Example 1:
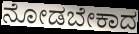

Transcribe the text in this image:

ನೋಡಬೇಕಾದ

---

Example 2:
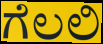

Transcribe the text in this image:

ಗೆಲಲಿ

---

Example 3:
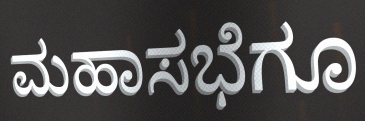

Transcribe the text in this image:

ಮಹಾಸಭೆಗೂ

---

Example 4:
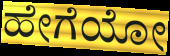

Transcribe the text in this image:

ಹೇಗೆಯೋ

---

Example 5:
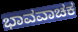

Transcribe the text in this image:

ಭಾವವಾಚಕ